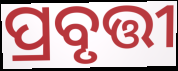
ପ୍ରବୃତ୍ତୀ